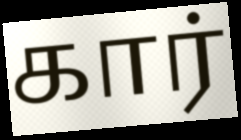
கார்